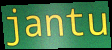
jantu